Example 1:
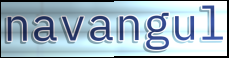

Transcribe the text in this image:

navangul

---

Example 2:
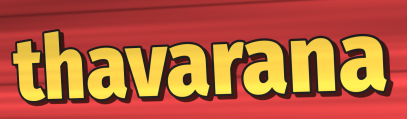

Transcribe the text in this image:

thavarana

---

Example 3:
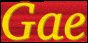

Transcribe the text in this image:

Gae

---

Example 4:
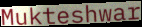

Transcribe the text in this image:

Mukteshwar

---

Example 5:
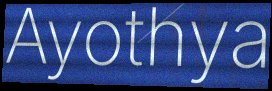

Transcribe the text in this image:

Ayothya